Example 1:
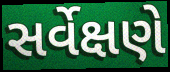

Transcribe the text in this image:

સર્વેક્ષણે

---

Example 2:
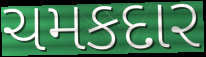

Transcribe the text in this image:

ચમકદાર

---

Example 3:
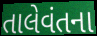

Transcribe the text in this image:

તાલેવંતના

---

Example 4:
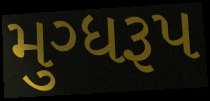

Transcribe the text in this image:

મુગ્ધરૂપ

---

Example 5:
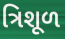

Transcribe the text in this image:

ત્રિશૂળ